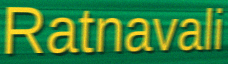
Ratnavali